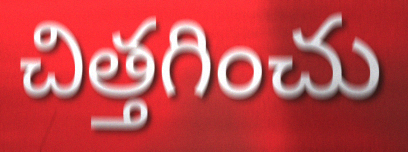
చిత్తగించు